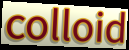
colloid